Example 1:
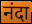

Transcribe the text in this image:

नंदा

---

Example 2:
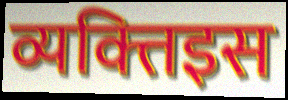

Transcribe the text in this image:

व्यक्तिइस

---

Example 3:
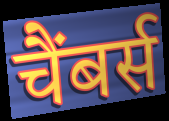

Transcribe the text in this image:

चैंबर्स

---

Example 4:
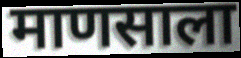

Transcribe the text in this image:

माणसाला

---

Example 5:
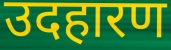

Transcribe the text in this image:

उदहारण